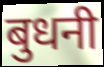
बुधनी